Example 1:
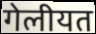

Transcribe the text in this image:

गेलीयत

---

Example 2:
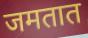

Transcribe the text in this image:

जमतात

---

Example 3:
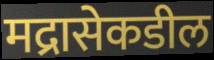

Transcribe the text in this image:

मद्रासेकडील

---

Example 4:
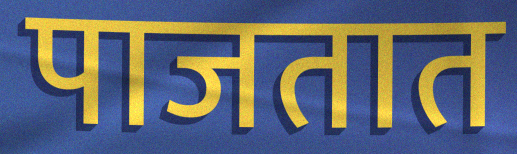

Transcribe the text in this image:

पाजतात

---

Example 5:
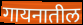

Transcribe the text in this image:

गायनातील